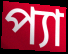
প্যা